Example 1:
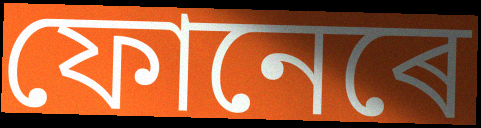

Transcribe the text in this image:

ফোনেৰে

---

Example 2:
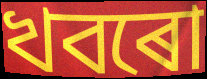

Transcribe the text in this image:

খবৰো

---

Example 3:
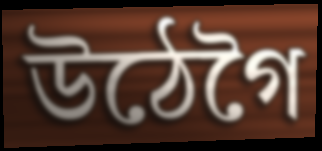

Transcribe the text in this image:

উঠেগৈ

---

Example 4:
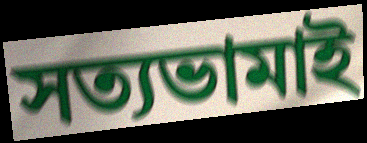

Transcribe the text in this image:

সত্যভামাই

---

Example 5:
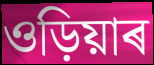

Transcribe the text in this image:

ওড়িয়াৰ